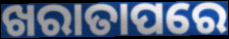
ଖରାତାପରେ